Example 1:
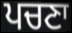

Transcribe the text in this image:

ਪਚਣਾ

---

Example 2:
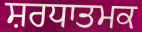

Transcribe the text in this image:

ਸ਼ਰਧਾਤਮਕ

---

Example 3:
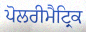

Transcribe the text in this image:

ਪੋਲਰੀਮੈਟ੍ਰਿਕ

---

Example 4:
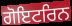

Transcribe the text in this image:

ਗੋਇਟਰਿਨ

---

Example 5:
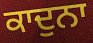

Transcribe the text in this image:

ਕਾਦੁਨਾ